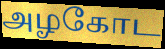
அழகோட